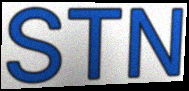
STN